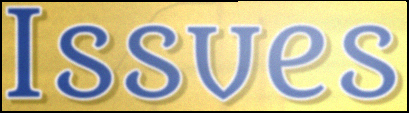
Issues